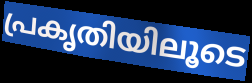
പ്രകൃതിയിലൂടെ